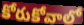
కోరుకోవాలో